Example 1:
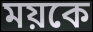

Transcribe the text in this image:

ময়কে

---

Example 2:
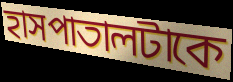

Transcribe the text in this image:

হাসপাতালটাকে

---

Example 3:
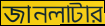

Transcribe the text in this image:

জানলাটার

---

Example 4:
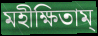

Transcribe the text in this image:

মহীক্ষিতাম্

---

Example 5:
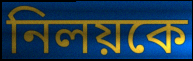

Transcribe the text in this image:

নিলয়কে